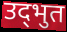
उद्भुत